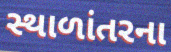
સ્થાળાંતરના